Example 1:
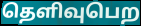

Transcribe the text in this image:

தெளிவுபெற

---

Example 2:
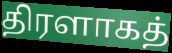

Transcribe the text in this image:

திரளாகத்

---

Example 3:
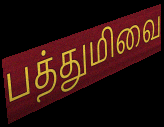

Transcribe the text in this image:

பத்துமிவை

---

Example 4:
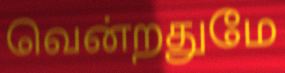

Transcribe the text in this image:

வென்றதுமே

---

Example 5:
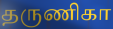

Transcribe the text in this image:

தருணிகா